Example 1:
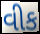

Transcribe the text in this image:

વીક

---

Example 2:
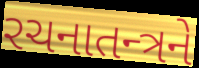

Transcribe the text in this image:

રચનાતન્ત્રને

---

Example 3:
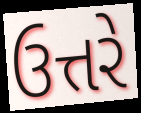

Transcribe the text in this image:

ઉત્તરે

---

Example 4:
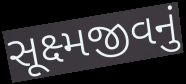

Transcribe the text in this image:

સૂક્ષ્મજીવનું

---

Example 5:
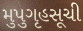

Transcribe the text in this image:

મુપુગૃહસૂચી